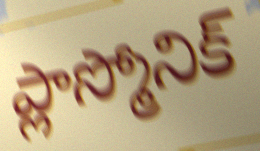
ప్లాస్మోనిక్